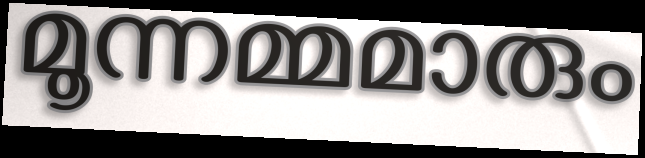
മൂന്നമ്മമാരും